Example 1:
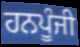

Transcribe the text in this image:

ਹਨਪੂੰਜੀ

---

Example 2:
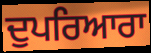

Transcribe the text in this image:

ਦੁਪਰਿਆਰਾ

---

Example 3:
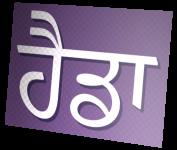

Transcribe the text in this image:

ਹੈਡਾ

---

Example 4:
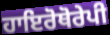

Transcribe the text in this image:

ਹਾਇਰੋਥੋਰੇਪੀ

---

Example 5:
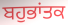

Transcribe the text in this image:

ਬਹੁਭਾਂਤਕ